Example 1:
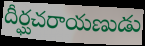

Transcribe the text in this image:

దీర్ఘచరాయణుడు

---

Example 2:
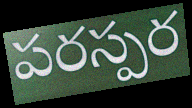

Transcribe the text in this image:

పరస్పర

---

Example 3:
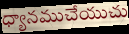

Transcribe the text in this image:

ధ్యానముచేయుచు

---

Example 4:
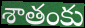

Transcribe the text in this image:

శాతంకు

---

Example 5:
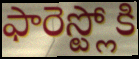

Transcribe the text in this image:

ఫారెస్ట్లోకి